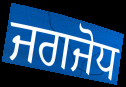
ਜਗਜੋਧ